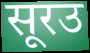
सूरउ